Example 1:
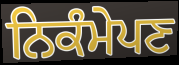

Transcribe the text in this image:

ਨਿਕੰਮੇਪਣ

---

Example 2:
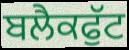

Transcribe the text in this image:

ਬਲੈਕਫੁੱਟ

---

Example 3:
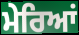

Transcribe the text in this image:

ਮੇਰਿਆਂ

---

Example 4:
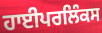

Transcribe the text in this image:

ਹਾਈਪਰਲਿੰਕਸ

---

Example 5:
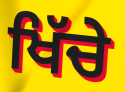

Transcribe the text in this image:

ਖਿੱਚੇ